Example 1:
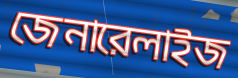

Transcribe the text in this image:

জেনারেলাইজ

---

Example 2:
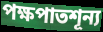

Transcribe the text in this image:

পক্ষপাতশূন্য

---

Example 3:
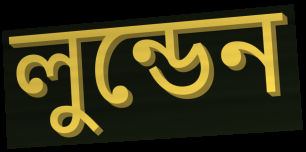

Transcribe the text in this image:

লুন্ডেন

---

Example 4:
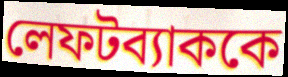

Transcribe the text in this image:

লেফটব্যাককে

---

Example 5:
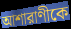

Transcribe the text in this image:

আশারাণীকে